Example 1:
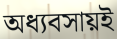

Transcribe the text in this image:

অধ্যবসায়ই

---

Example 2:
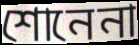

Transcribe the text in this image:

শোনেনা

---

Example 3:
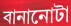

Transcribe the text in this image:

বানানোটা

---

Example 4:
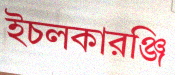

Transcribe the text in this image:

ইচলকারঞ্জি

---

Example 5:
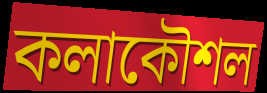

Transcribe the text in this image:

কলাকৌশল